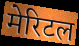
मेरिटल